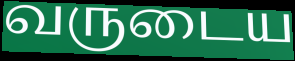
வருடைய